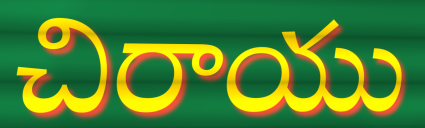
చిరాయు